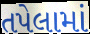
તપેલામાં